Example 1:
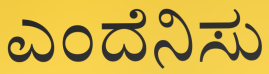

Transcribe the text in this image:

ಎಂದೆನಿಸು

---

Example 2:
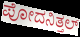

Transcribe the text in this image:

ಪೋದನಿತ್ತಲ್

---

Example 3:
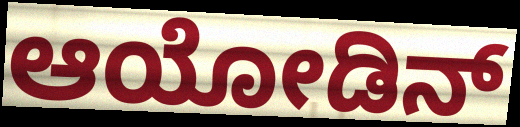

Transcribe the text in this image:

ಆಯೋಡಿನ್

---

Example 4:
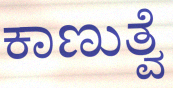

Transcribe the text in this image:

ಕಾಣುತ್ವೆ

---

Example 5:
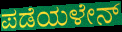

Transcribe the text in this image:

ಪಡೆಯಳೇನ್